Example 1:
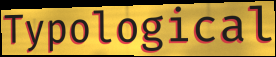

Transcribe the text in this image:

Typological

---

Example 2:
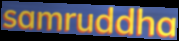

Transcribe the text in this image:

samruddha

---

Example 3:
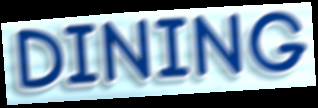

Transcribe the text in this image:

DINING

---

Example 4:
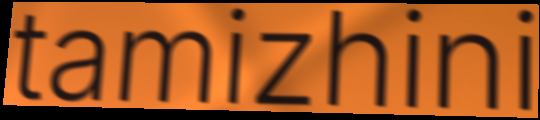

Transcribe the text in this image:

tamizhini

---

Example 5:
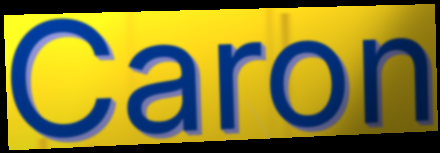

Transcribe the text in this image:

Caron